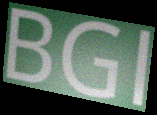
BGI